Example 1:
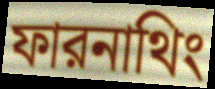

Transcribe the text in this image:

ফারনাথিং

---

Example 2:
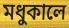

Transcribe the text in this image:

মধুকালে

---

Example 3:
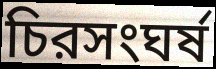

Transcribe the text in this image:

চিরসংঘর্ষ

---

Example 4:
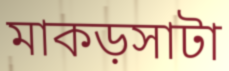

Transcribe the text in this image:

মাকড়সাটা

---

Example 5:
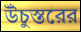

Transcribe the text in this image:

উঁচুস্তরের